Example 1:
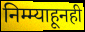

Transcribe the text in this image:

निम्म्याहूनही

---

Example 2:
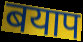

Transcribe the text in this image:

बयाप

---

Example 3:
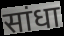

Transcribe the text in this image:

सांधा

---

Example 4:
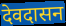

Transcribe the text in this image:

देवदासन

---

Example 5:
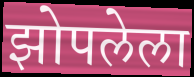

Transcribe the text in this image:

झोपलेला